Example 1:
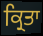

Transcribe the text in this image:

ਕ੍ਰਿਤਾ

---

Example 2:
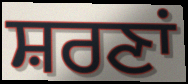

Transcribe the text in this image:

ਸ਼ਰਣਾਂ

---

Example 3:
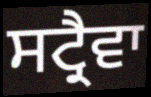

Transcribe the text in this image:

ਸਟ੍ਰੈਵਾ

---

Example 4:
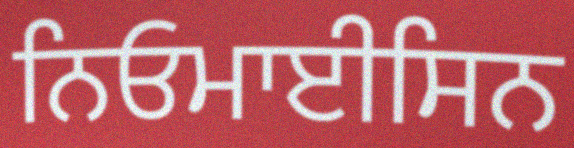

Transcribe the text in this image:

ਨਿਓਮਾਈਸਿਨ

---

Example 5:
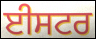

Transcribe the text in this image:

ਈਸਟਰ